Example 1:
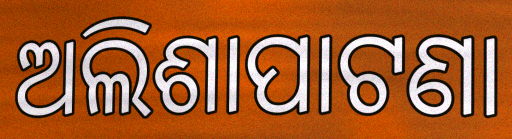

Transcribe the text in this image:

ଅଲିଶାପାଟଣା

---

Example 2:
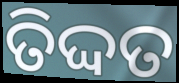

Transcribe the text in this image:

ତିଦ୍ଦତ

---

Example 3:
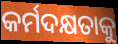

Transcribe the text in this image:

କର୍ମଦକ୍ଷତାକୁ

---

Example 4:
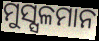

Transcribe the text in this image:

ମୁସ୍ସଳମାନ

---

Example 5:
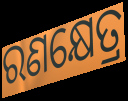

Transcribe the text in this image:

ରଣକ୍ଷେତ୍ର